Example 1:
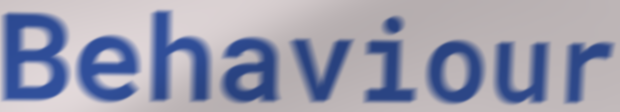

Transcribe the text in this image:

Behaviour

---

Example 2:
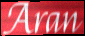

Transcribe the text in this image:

Aran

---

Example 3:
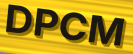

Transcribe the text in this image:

DPCM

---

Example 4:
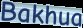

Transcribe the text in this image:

Bakhua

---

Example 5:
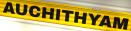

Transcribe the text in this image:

AUCHITHYAM